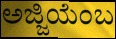
ಅಜ್ಜಿಯೆಂಬ